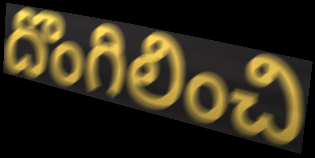
దొంగిలించి